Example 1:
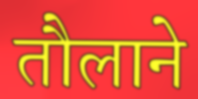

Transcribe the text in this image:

तौलाने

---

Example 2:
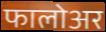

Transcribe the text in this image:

फालोअर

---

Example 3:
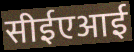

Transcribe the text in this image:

सीईएआई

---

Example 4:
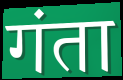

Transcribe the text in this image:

गंता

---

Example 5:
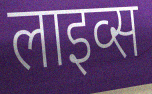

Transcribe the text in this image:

लाइव्स